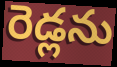
రెడ్లను